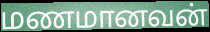
மணமானவன்